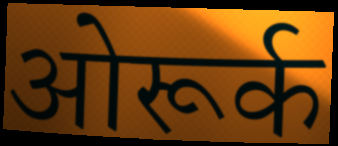
ओरूर्क